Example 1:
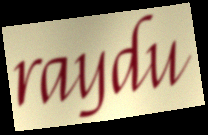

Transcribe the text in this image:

raydu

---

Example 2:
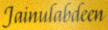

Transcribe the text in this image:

Jainulabdeen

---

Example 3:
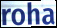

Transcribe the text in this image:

roha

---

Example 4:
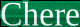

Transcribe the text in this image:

Chere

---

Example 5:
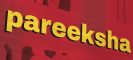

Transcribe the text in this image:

pareeksha